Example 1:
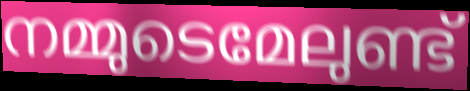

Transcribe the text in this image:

നമ്മുടെമേലുണ്ട്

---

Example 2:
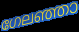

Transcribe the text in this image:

ഗേലഞ്ഞാ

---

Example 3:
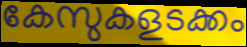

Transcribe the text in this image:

കേസുകളടക്കം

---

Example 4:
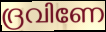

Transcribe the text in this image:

ദ്രവിണേ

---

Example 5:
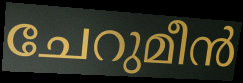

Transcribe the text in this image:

ചേറുമീൻ